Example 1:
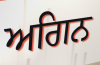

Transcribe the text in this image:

ਅਗਿਨ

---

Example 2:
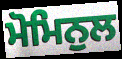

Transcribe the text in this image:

ਮੋਮਿਨੁਲ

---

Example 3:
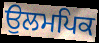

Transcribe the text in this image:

ਉਲਮਪਿਕ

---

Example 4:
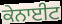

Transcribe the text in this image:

ਕੇਨਾਈਟ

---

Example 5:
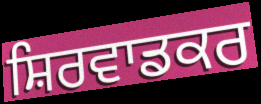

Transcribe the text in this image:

ਸ਼ਿਰਵਾਡਕਰ